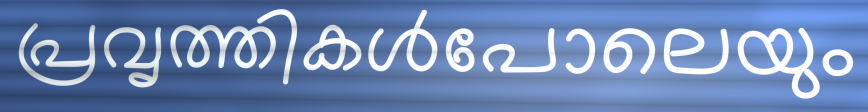
പ്രവൃത്തികൾപോലെയും